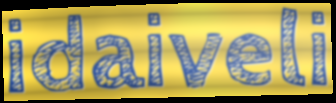
idaiveli